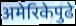
अमेरिकेपुढे